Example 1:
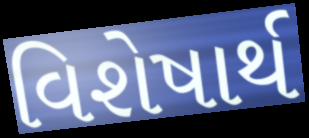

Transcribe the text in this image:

વિશેષાર્થ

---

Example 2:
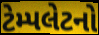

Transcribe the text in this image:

ટેમ્પલેટનો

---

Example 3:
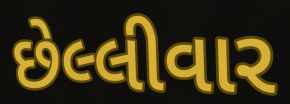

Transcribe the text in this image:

છેલ્લીવાર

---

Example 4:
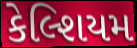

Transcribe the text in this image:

કેલ્શિયમ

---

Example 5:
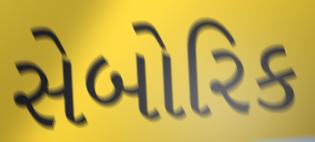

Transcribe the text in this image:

સેબોરિક